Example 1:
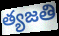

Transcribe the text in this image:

త్యజతి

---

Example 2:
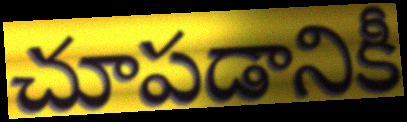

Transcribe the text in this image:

చూపడానికీ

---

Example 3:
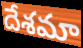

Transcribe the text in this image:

దేశమా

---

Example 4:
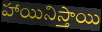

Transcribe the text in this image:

హాయినిస్తాయి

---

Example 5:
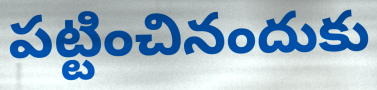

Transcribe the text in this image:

పట్టించినందుకు